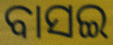
ବାସଇ